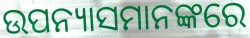
ଉପନ୍ୟାସମାନଙ୍କରେ